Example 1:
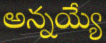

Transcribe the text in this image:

అన్నయ్యే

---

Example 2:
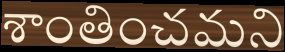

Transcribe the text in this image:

శాంతించమని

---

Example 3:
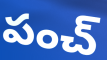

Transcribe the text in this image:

పంచ్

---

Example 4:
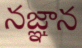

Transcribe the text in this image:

నజ్ఞాన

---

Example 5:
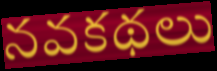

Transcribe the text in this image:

నవకథలు